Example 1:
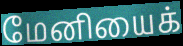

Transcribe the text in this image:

மேனியைக்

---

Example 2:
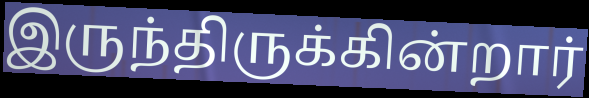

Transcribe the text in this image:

இருந்திருக்கின்றார்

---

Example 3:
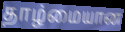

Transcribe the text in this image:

தாழ்மையான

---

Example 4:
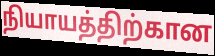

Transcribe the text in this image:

நியாயத்திற்கான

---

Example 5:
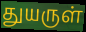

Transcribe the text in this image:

துயருள்